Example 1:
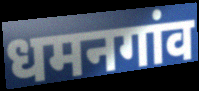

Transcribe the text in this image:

धमनगांव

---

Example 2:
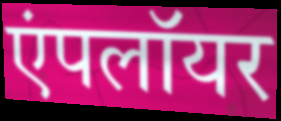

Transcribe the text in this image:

एंपलॉयर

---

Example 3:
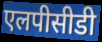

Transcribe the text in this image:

एलपीसीडी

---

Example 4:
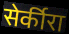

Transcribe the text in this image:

सेर्कीरा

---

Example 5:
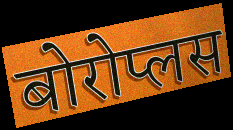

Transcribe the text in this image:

बोरोप्लस